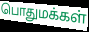
பொதுமக்கள்